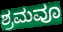
ಶ್ರಮವೂ